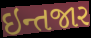
ઇન્તજાર